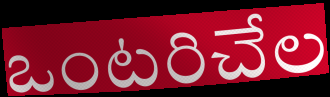
ఒంటరిచేల